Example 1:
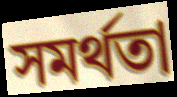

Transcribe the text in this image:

সমর্থতা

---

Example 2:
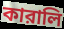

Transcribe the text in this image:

কারালি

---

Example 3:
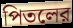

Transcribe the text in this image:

পিতলের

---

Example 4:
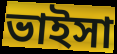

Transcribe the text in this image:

ভাইসা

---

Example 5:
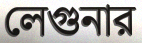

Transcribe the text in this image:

লেগুনার